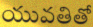
యువతితో